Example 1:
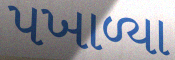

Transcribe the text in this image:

પખાળ્યા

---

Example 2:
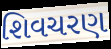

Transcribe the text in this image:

શિવચરણ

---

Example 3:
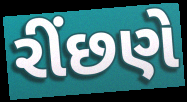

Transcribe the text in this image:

રીંછણે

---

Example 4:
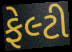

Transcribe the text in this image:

ફેલ્ટી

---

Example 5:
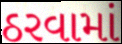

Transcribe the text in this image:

ઠરવામાં